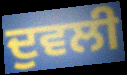
ਦੁਵਲੀ